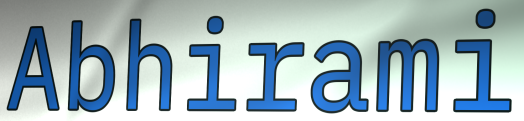
Abhirami